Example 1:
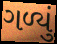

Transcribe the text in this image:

ગળ્યું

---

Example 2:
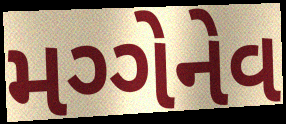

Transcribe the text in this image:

મગ્ગેનેવ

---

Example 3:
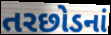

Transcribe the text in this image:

તરછોડનાં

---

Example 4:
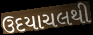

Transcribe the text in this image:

ઉદયાચલથી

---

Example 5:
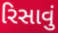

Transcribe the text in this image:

રિસાવું